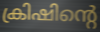
ക്രിഷിന്റെ